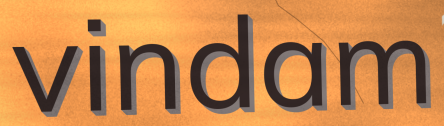
vindam